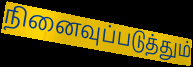
நினைவுப்படுத்தும்